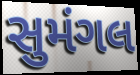
સુમંગલ